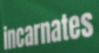
incarnates